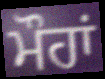
ਮੌਹਾਂ